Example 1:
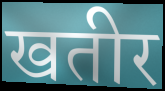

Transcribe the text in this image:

खतीर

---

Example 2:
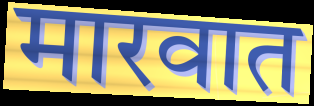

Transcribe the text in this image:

मारवात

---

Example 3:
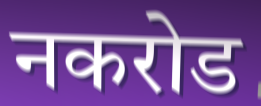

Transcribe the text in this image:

नकरोड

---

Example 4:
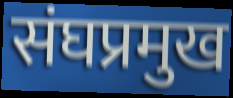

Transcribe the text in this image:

संघप्रमुख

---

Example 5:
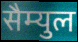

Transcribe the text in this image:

सैम्युल